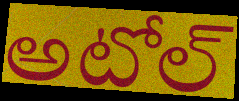
అటోల్